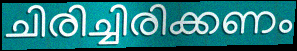
ചിരിച്ചിരിക്കണം